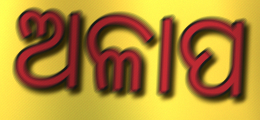
ଅଳାପ